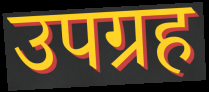
उपग्रह